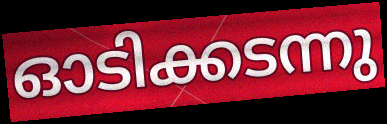
ഓടിക്കടന്നു